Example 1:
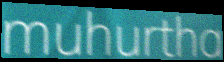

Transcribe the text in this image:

muhurtha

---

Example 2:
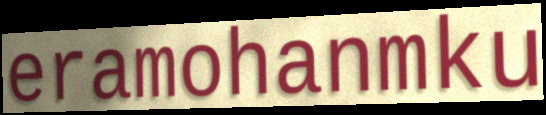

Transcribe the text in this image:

eramohanmku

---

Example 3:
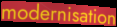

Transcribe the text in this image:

modernisation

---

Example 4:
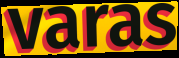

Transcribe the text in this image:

varas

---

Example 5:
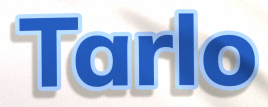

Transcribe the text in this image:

Tarlo